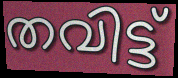
തവിട്ട്